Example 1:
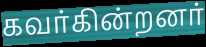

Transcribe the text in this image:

கவர்கின்றனர்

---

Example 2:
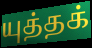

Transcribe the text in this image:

யுத்தக்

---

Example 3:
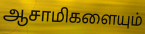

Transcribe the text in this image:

ஆசாமிகளையும்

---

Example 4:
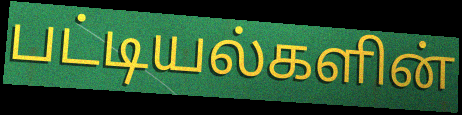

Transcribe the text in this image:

பட்டியல்களின்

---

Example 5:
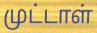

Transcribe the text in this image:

முட்டாள்